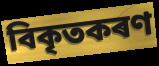
বিকৃতকৰণ